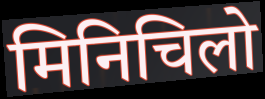
मिनिचिलो